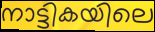
നാട്ടികയിലെ